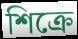
শিক্রে